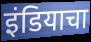
इंडियाचा